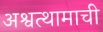
अश्वत्थामाची